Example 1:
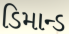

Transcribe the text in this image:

ડિમાન્ડ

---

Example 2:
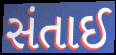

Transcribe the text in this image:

સંતાઈ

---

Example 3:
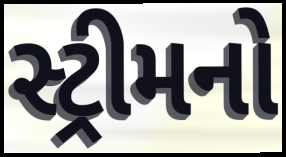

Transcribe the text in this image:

સ્ટ્રીમનો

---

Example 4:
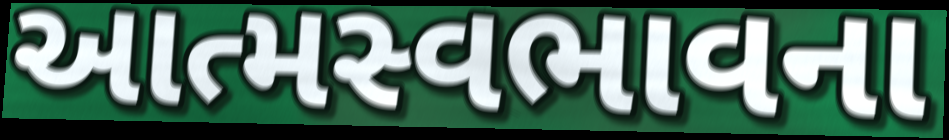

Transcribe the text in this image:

આત્મસ્વભાવના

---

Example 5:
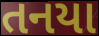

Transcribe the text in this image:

તનયા